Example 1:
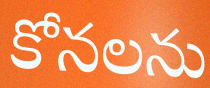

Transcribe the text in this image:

కోనలను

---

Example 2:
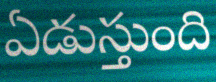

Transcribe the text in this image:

ఏడుస్తుంది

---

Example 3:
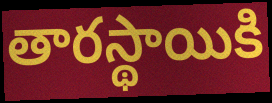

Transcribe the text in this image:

తారస్థాయికి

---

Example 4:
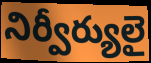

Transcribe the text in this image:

నిర్వీర్యులై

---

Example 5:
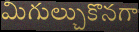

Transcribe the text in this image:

మిగుల్చుకొనగా